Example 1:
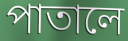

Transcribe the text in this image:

পাতালে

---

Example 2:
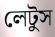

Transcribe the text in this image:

লেটুস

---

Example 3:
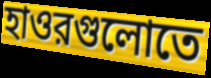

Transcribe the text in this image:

হাওরগুলোতে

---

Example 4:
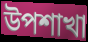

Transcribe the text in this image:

উপশাখা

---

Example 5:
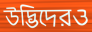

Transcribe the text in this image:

উদ্ভিদেরও